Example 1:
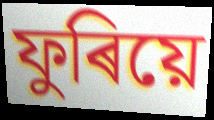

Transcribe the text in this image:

ফুৰিয়ে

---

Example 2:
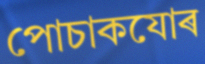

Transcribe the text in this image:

পোচাকযোৰ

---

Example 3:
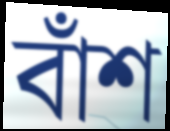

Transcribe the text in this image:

বাঁশ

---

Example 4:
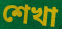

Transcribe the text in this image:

শেখা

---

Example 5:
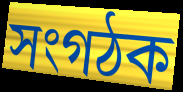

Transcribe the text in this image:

সংগঠক